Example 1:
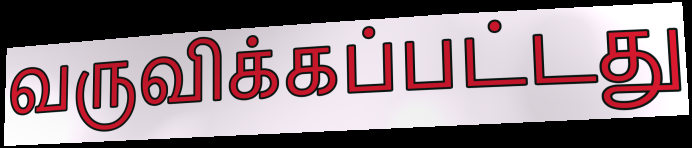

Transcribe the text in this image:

வருவிக்கப்பட்டது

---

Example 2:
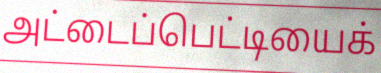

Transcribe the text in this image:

அட்டைப்பெட்டியைக்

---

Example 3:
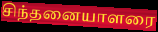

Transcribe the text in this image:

சிந்தனையாளரை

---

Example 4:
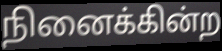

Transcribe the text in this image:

நினைக்கின்ற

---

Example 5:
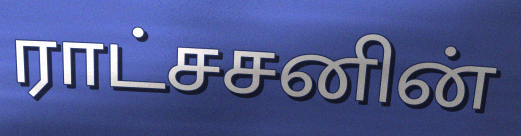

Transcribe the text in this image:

ராட்சசனின்